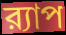
র‍্যাপ